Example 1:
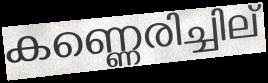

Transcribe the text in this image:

കണ്ണെരിച്ചില്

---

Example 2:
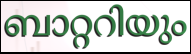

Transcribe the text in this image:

ബാറ്ററിയും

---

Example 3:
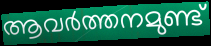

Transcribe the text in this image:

ആവർത്തനമുണ്ട്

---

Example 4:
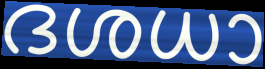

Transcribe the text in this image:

ദശധാ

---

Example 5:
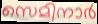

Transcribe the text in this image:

സെമിനാർ